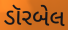
ડૉરબેલ